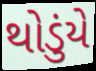
થોડુંયે